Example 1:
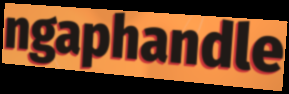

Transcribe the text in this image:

ngaphandle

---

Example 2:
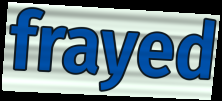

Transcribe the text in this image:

frayed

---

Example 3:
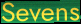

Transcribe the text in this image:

Sevens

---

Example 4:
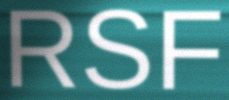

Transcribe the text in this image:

RSF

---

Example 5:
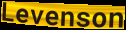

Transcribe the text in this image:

Levenson